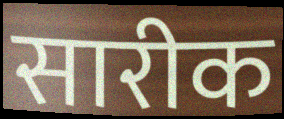
सारीक